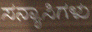
ಸನ್ಯಾಸಿಗಳು